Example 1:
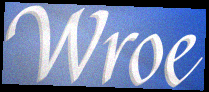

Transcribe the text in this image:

Wroe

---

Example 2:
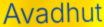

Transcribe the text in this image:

Avadhut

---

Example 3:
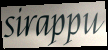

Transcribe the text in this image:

sirappu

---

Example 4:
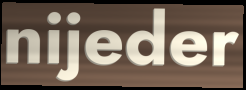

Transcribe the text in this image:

nijeder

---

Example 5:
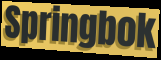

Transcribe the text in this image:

Springbok